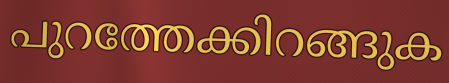
പുറത്തേക്കിറങ്ങുക